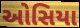
ઓસિયા